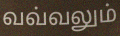
வவ்வலும்